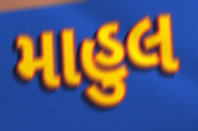
માહુલ